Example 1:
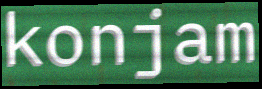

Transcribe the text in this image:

konjam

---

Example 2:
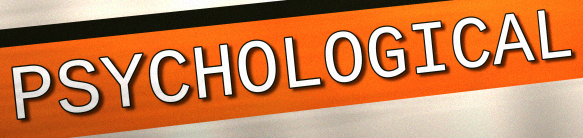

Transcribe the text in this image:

PSYCHOLOGICAL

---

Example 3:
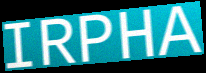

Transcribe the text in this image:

IRPHA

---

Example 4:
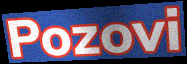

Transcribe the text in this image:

Pozovi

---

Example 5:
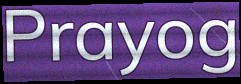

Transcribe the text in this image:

Prayog